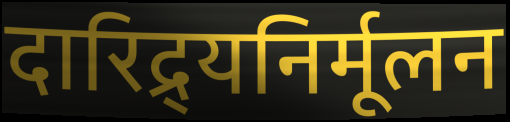
दारिद्र्यनिर्मूलन